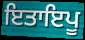
ਇਤਾਇਪੂ